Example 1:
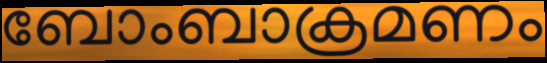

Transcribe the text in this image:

ബോംബാക്രമണം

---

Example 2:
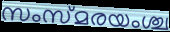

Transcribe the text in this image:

സംസ്മരയംശ്ച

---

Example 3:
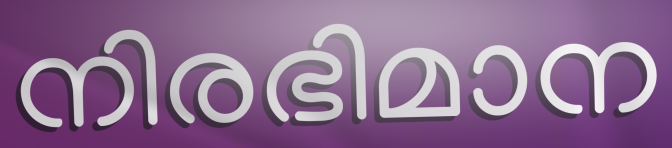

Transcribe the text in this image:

നിരഭിമാന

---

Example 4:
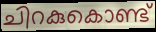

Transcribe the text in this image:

ചിറകുകൊണ്ട്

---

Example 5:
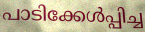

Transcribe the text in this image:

പാടിക്കേൾപ്പിച്ച